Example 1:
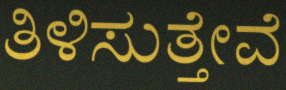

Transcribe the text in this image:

ತಿಳಿಸುತ್ತೇವೆ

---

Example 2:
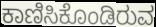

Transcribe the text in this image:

ಕಾಣಿಸಿಕೊಂಡಿರುವ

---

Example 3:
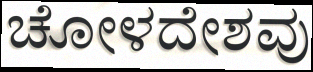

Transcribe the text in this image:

ಚೋಳದೇಶವು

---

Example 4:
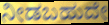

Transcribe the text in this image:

ನೀಡಬಹುದೇ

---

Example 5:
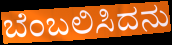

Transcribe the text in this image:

ಬೆಂಬಲಿಸಿದನು